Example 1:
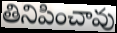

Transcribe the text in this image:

తినిపించావు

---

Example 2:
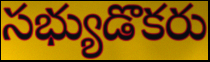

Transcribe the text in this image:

సభ్యుడొకరు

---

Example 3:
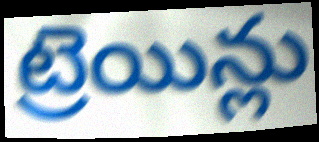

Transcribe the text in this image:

ట్రెయిన్లు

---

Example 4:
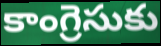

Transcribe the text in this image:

కాంగ్రెసుకు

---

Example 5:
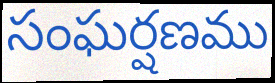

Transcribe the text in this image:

సంఘర్షణము